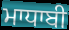
ਮਾਧਾਬੀ